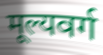
मूल्यवर्ग